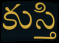
కుస్తి